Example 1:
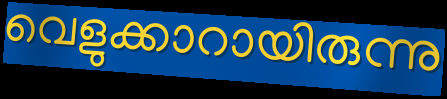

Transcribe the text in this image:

വെളുക്കാറായിരുന്നു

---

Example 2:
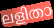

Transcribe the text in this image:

ലളിതാ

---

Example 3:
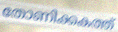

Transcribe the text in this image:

തോണിക്കകത്ത്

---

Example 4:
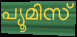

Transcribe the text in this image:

പ്യൂമിസ്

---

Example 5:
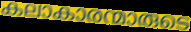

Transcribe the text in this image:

കലാകാരന്മാരുടെ